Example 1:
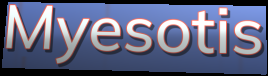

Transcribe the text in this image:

Myesotis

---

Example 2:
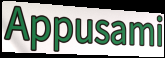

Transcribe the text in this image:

Appusami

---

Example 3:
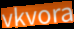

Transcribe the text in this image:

vkvora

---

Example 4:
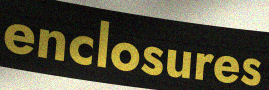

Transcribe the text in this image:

enclosures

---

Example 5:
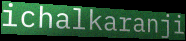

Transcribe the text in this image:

ichalkaranji